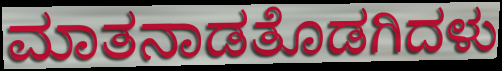
ಮಾತನಾಡತೊಡಗಿದಳು